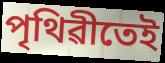
পৃথিৱীতেই